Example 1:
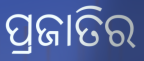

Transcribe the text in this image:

ପ୍ରଜାତିର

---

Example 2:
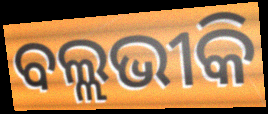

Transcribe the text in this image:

ବଲ୍ଲଭୀକି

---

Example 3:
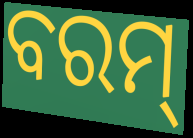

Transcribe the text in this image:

ବରମ୍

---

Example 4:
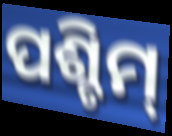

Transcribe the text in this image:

ପଶ୍ଚିମ୍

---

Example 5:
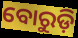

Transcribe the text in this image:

ବୋରୁଡ଼ି